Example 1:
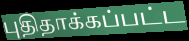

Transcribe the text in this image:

புதிதாக்கப்பட்ட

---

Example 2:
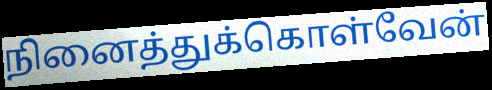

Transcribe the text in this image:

நினைத்துக்கொள்வேன்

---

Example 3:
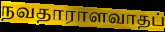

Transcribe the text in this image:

நவதாராளவாதப்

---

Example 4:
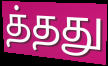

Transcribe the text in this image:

த்தது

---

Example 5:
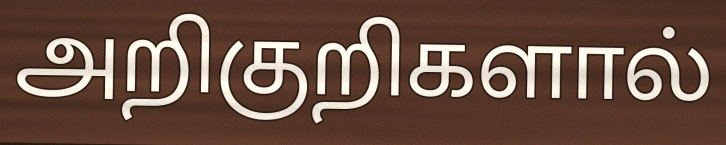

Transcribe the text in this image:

அறிகுறிகளால்